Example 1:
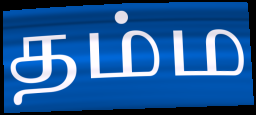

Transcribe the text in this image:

தம்ம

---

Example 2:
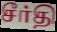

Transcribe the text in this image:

சீர்தி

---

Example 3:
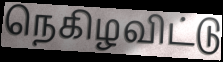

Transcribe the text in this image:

நெகிழவிட்டு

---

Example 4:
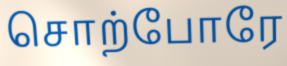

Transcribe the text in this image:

சொற்போரே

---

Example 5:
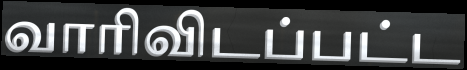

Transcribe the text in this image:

வாரிவிடப்பட்ட